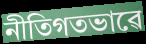
নীতিগতভাৱে